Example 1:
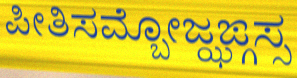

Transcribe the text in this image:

ಪೀತಿಸಮ್ಬೋಜ್ಝಙ್ಗಸ್ಸ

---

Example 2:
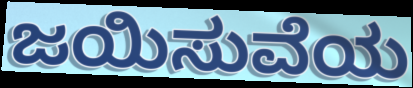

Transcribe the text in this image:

ಜಯಿಸುವೆಯ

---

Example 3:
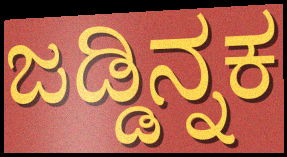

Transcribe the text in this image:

ಜಡ್ಡಿನ್ನಕ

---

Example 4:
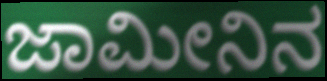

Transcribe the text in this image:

ಜಾಮೀನಿನ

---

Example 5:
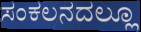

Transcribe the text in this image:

ಸಂಕಲನದಲ್ಲೂ